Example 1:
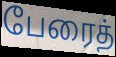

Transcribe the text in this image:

பேரைத்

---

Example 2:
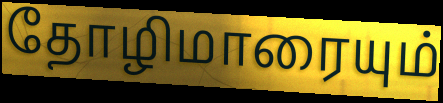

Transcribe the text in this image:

தோழிமாரையும்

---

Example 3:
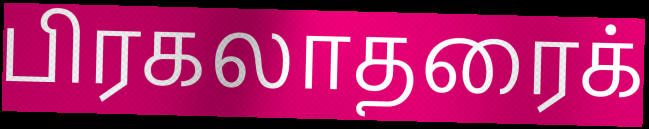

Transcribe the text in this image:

பிரகலாதரைக்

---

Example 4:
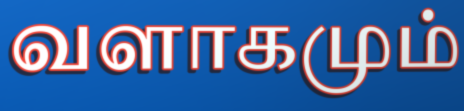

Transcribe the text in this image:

வளாகமும்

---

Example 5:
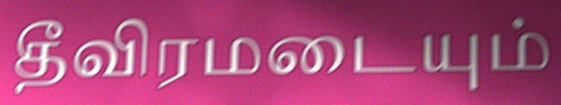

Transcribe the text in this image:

தீவிரமடையும்